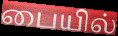
பையில்